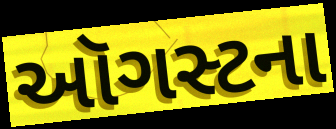
ઑગસ્ટના